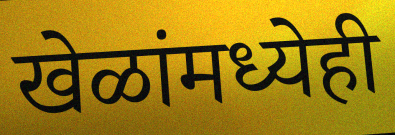
खेळांमध्येही